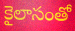
కైలాసంతో